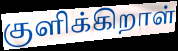
குளிக்கிறாள்